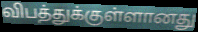
விபத்துக்குள்ளானது